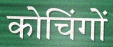
कोचिंगों